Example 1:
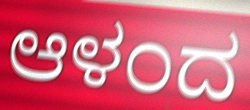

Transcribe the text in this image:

ಆಳಂದ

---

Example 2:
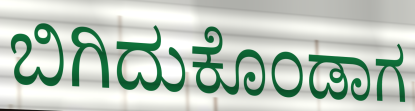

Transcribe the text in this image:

ಬಿಗಿದುಕೊಂಡಾಗ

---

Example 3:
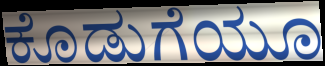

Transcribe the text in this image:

ಕೊಡುಗೆಯೂ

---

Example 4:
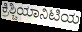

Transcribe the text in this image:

ಕ್ರಿಶ್ಚಿಯಾನಿಟಿಯ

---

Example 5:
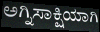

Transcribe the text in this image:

ಅಗ್ನಿಸಾಕ್ಷಿಯಾಗಿ